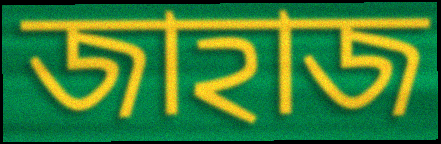
জাহাজ